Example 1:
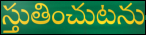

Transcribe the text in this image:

స్తుతించుటను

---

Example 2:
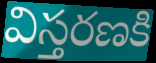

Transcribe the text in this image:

విస్తరణకి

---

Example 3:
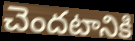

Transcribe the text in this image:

చెందటానికి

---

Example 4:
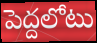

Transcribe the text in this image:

పెద్దలోటు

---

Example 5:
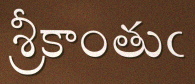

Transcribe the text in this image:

శ్రీకాంతుఁ